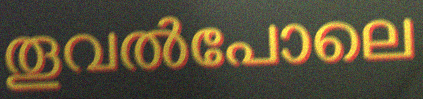
തൂവൽപോലെ